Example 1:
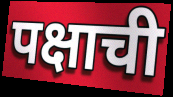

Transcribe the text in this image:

पक्षाची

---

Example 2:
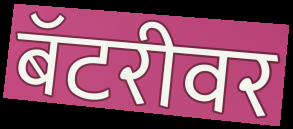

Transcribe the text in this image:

बॅटरीवर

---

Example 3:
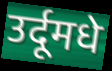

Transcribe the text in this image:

उर्दूमधे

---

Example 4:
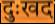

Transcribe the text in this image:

दुःखद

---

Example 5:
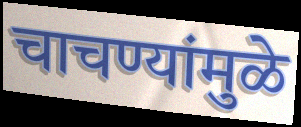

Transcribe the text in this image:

चाचण्यांमुळे